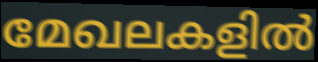
മേഖലകളിൽ